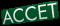
ACCET